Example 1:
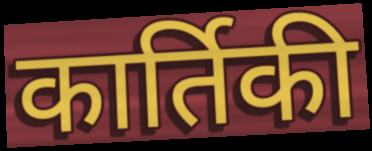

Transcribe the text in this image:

कार्तिकी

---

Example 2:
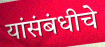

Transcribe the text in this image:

यांसंबंधीचे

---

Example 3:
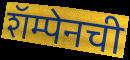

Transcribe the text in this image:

शॅम्पेनची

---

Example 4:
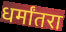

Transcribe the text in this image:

धर्मांतरा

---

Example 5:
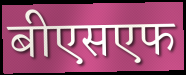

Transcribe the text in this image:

बीएसएफ